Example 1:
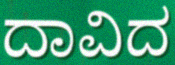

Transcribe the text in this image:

ದಾವಿದ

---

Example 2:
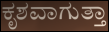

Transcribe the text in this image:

ಕೃಶವಾಗುತ್ತಾ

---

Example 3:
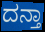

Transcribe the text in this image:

ದನ್ತಾ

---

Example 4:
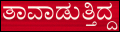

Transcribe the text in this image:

ತಾವಾಡುತ್ತಿದ್ದ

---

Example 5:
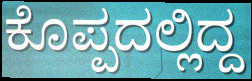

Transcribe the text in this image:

ಕೊಪ್ಪದಲ್ಲಿದ್ದ